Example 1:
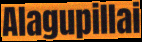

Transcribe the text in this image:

Alagupillai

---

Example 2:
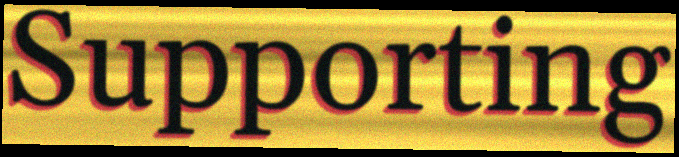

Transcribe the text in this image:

Supporting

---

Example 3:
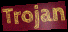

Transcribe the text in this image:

Trojan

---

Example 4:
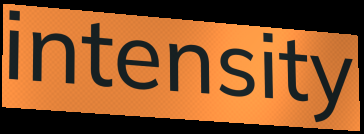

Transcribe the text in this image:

intensity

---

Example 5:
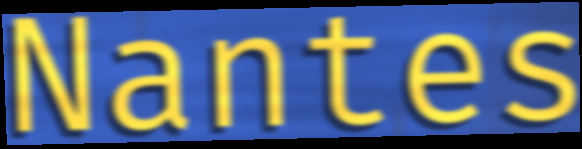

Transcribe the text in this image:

Nantes